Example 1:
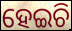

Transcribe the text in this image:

ହେଇଚି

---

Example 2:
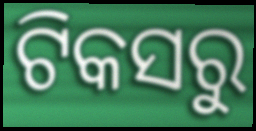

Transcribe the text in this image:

ଟିକସରୁ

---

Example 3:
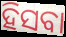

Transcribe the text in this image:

ହିସବା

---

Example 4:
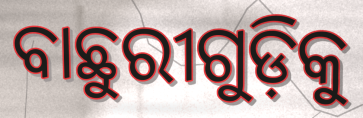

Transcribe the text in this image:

ବାଛୁରୀଗୁଡ଼ିକୁ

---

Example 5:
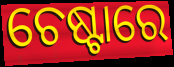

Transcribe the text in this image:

ଚେଷ୍ଟାରେ